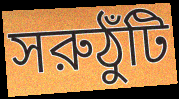
সরুঠুঁটি